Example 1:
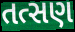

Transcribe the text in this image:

તત્સણ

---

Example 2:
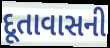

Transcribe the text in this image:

દૂતાવાસની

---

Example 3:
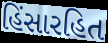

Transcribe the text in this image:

હિંસારહિત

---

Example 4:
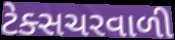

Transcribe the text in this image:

ટેક્સચરવાળી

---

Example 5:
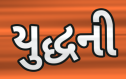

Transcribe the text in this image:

યુદ્ધની